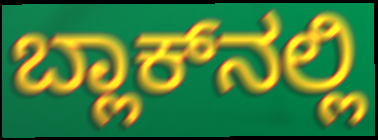
ಬ್ಲಾಕ್‌ನಲ್ಲಿ